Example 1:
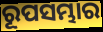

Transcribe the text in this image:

ରୂପସମ୍ଭାର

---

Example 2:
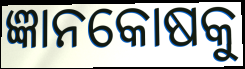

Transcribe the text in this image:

ଜ୍ଞାନକୋଷକୁ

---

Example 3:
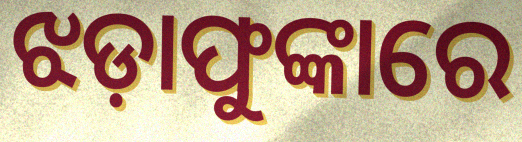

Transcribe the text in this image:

ଝଡ଼ାଫୁଙ୍କାରେ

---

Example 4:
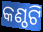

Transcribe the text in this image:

କଣ୍ଠଟି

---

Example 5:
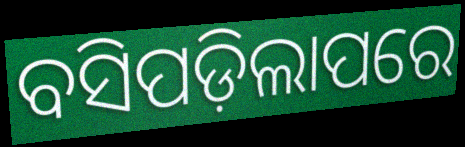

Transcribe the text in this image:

ବସିପଡ଼ିଲାପରେ